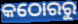
କଠୋରରୁ